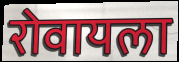
रोवायला